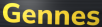
Gennes